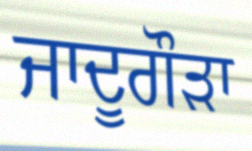
ਜਾਦੂਗੌੜਾ